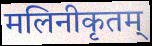
मलिनीकृतम्